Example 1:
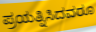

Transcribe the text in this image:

ಪ್ರಯತ್ನಿಸಿದವರೂ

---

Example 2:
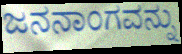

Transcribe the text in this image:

ಜನನಾಂಗವನ್ನು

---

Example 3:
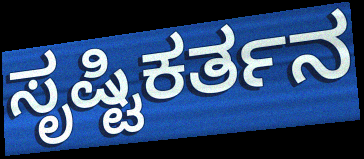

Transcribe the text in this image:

ಸೃಷ್ಟಿಕರ್ತನ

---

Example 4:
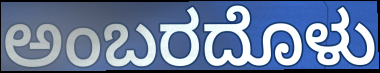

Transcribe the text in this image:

ಅಂಬರದೊಳು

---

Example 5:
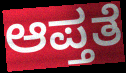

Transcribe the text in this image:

ಆಪ್ತತೆ